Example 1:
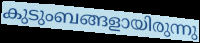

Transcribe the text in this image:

കുടുംബങ്ങളായിരുന്നു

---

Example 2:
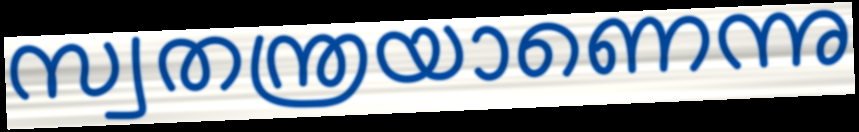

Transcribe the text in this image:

സ്വതന്ത്രയാണെന്നു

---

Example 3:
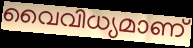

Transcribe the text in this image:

വൈവിധ്യമാണ്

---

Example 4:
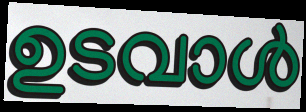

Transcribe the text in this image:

ഉടവാൾ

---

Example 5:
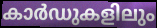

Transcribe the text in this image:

കാർഡുകളിലും